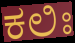
ಕಲಿಃ